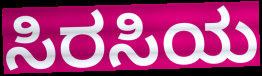
ಸಿರಸಿಯ